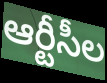
ఆర్టీసీల